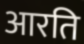
आरति